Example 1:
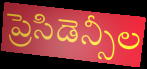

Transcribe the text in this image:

ప్రెసిడెన్సీల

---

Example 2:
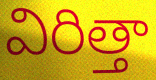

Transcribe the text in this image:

విరిత్తా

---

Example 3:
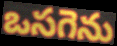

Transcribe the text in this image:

ఒసగెను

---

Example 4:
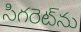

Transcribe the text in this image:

సిగరెట్‌ను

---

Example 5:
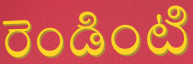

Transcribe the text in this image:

రెండింటి